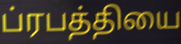
ப்ரபத்தியை